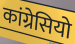
कांग्रेसियो